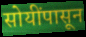
सोयींपासून